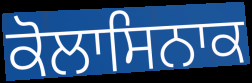
ਕੋਲਾਸਿਨਾਕ